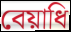
বেয়াধি